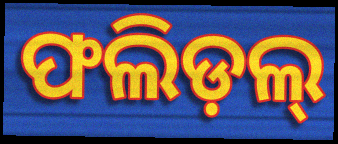
ଫଲିଡ଼ଲ୍